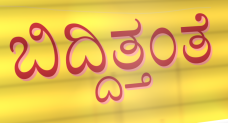
ಬಿದ್ದಿತ್ತಂತೆ